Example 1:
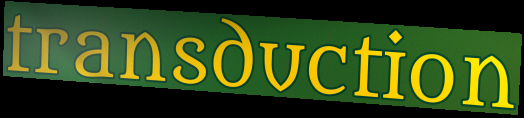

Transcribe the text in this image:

transduction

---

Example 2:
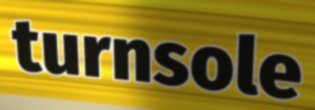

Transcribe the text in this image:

turnsole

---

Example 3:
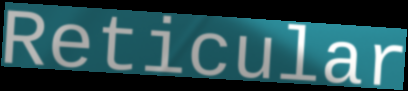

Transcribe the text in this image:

Reticular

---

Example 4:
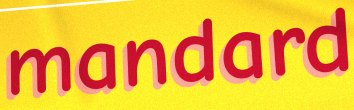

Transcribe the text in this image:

mandard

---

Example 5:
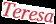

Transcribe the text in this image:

Teresa